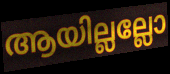
ആയില്ലല്ലോ